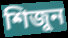
শিজুন